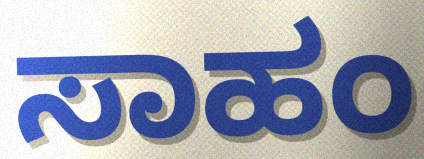
ಸಾಹಂ